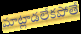
మాట్లాడలేకపోతే